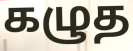
கழுத